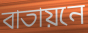
বাতায়নে